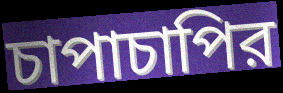
চাপাচাপির